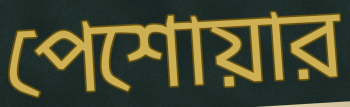
পেশোয়ার